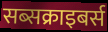
सब्सक्राइबर्स